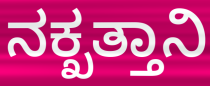
ನಕ್ಖತ್ತಾನಿ